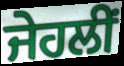
ਜੇਹਲੀਂ